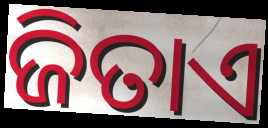
ଜିତାଏ